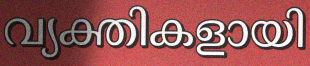
വ്യക്തികളായി